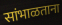
सांभाळताना